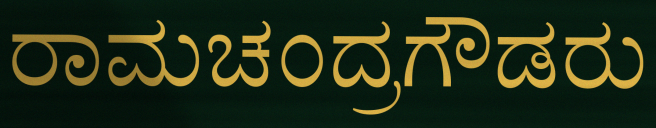
ರಾಮಚಂದ್ರಗೌಡರು